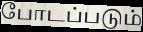
போடப்படும்